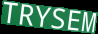
TRYSEM